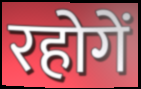
रहोगें